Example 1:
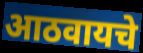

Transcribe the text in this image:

आठवायचे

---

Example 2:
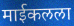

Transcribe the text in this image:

माईकलला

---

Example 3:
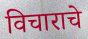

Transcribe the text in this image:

विचाराचे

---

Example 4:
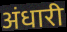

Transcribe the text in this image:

अंधारी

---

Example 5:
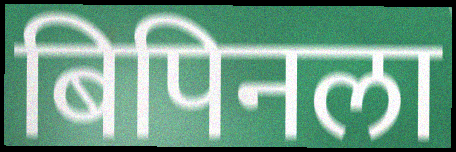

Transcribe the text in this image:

बिपिनला